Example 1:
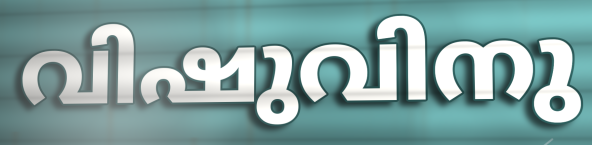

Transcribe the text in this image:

വിഷുവിനു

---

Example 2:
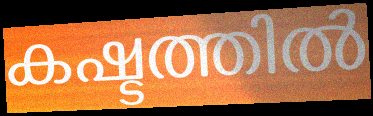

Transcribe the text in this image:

കഷ്ടത്തിൽ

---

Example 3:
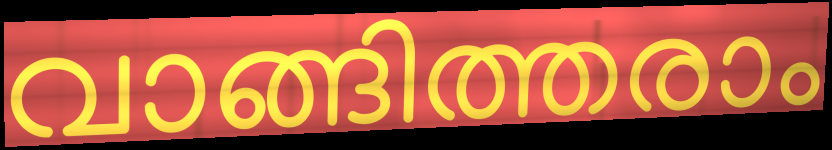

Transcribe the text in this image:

വാങ്ങിത്തരാം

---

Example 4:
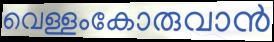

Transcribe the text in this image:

വെള്ളംകോരുവാൻ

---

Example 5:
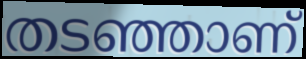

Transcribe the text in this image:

തടഞ്ഞാണ്